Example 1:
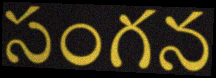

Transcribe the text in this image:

సంగన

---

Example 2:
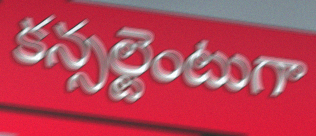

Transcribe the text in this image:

కన్సల్టెంటుగా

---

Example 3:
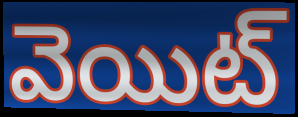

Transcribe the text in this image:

వెయిట్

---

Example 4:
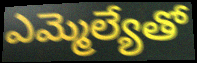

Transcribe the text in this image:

ఎమ్మెల్యేతో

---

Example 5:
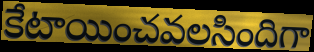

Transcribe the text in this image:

కేటాయించవలసిందిగా